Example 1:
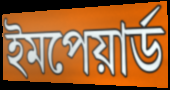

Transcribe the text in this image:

ইমপেয়াৰ্ড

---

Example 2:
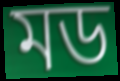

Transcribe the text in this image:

মড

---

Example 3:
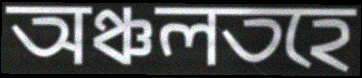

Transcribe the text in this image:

অঞ্চলতহে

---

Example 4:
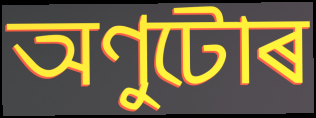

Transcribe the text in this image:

অণুটোৰ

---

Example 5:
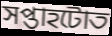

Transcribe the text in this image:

সপ্তাহটোত